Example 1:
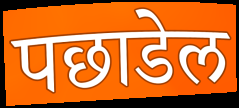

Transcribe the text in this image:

पछाडेल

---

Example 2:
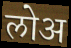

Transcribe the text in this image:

लोअ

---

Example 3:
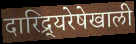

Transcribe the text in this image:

दारिद्र्यरेषेखाली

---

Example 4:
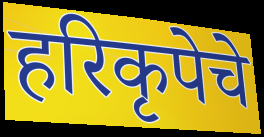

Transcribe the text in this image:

हरिकृपेचे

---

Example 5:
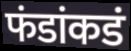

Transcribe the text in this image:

फंडांकडं